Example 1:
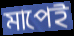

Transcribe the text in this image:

মাপেই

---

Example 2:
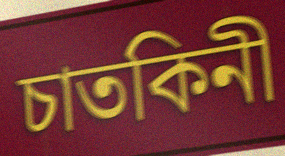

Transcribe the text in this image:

চাতকিনী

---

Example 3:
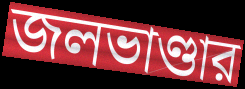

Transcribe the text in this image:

জলভাণ্ডার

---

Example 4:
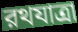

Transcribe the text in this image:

রথযাত্রা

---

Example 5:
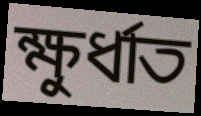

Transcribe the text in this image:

ক্ষুর্ধাত